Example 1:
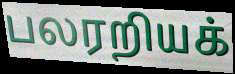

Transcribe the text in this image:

பலரறியக்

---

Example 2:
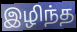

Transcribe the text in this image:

இழிந்த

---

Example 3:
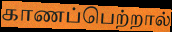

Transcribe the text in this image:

காணப்பெற்றால்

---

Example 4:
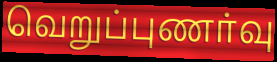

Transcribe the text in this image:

வெறுப்புணர்வு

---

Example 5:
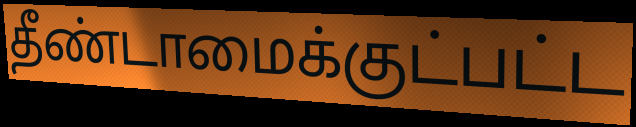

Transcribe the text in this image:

தீண்டாமைக்குட்பட்ட